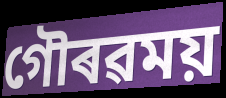
গৌৰৱময়